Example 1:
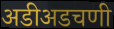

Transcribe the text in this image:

अडीअडचणी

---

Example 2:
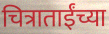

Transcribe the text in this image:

चित्राताईंच्या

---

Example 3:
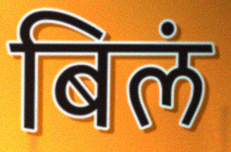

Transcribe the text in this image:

बिलं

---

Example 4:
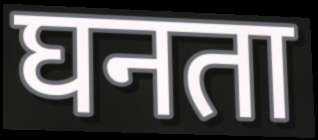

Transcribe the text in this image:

घनता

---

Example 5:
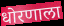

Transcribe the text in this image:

धोरणाला